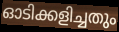
ഓടിക്കളിച്ചതും